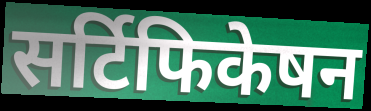
सर्टिफिकेषन